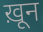
ख़ून